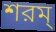
শরম্